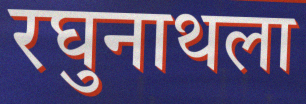
रघुनाथला